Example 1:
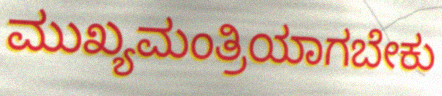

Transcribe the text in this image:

ಮುಖ್ಯಮಂತ್ರಿಯಾಗಬೇಕು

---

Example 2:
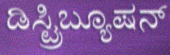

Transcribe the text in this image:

ಡಿಸ್ಟ್ರಿಬ್ಯೂಷನ್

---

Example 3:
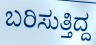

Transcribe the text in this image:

ಬರಿಸುತ್ತಿದ್ದ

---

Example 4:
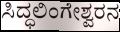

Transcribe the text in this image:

ಸಿದ್ಧಲಿಂಗೇಶ್ವರನ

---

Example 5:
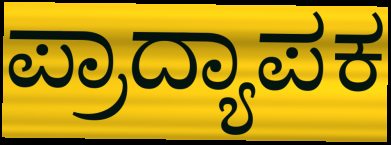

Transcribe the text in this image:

ಪ್ರಾದ್ಯಾಪಕ